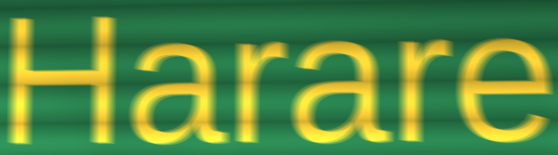
Harare